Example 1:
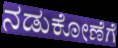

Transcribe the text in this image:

ನಡುಕೋಣೆಗೆ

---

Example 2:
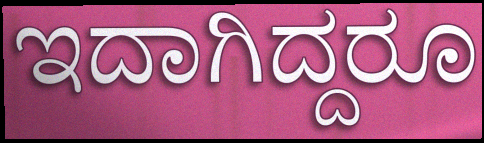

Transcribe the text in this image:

ಇದಾಗಿದ್ದರೂ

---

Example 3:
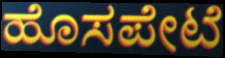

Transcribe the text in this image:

ಹೊಸಪೇಟೆ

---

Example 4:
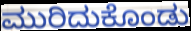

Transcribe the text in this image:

ಮುರಿದುಕೊಂಡು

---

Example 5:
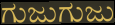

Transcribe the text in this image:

ಗುಜುಗುಜು